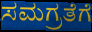
ಸಮಗ್ರತೆಗೆ